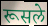
रूसले